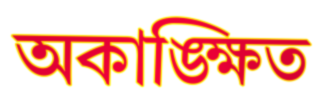
অকাঙ্ক্ষিত